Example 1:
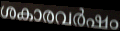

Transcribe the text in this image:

ശകാരവർഷം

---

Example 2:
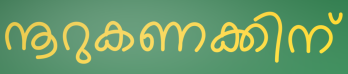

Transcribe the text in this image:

നൂറുകണക്കിന്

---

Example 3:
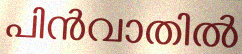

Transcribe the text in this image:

പിൻവാതിൽ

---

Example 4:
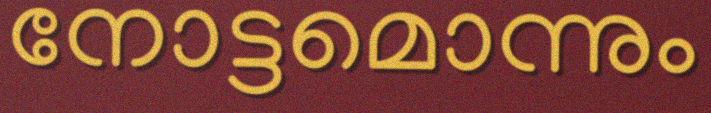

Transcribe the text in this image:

നോട്ടമൊന്നും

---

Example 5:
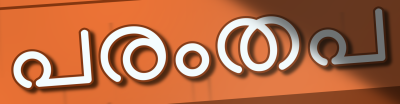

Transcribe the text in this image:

പരംതപ